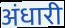
अंधारी